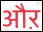
औऱ